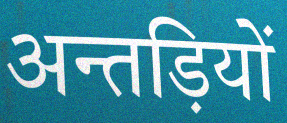
अन्तड़ियों